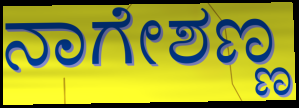
ನಾಗೇಶಣ್ಣ